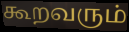
கூறவரும்